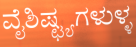
ವೈಶಿಷ್ಟ್ಯಗಳುಳ್ಳ